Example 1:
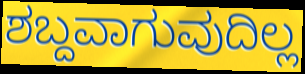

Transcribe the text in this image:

ಶಬ್ದವಾಗುವುದಿಲ್ಲ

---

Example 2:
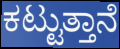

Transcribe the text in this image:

ಕಟ್ಟುತ್ತಾನೆ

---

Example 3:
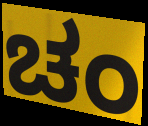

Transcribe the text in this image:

ಚಂ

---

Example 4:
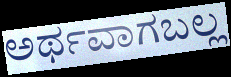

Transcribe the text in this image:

ಅರ್ಥವಾಗಬಲ್ಲ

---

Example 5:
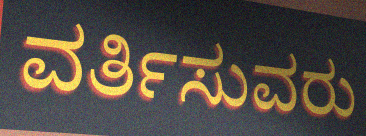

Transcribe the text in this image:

ವರ್ತಿಸುವರು